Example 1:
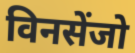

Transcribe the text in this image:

विनसेंजो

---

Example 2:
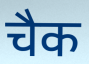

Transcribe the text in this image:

चैक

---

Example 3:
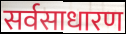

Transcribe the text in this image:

सर्वसाधारण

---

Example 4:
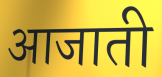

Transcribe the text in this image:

आजाती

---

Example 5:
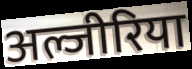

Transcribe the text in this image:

अल्जीरिया